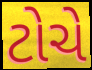
ટોચે